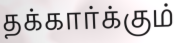
தக்கார்க்கும்